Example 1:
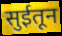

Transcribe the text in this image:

सुईतून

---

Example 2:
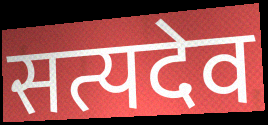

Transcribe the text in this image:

सत्यदेव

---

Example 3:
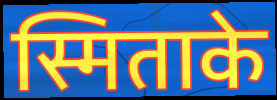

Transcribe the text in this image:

स्मिताके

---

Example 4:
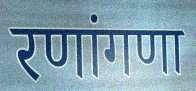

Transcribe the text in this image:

रणांगणा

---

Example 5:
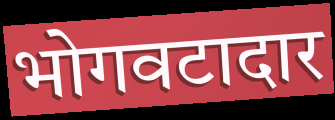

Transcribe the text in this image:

भोगवटादार